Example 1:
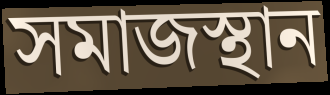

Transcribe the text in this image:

সমাজস্থান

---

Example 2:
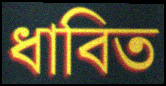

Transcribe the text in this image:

ধাবিত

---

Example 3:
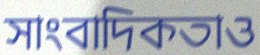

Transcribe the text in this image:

সাংবাদিকতাও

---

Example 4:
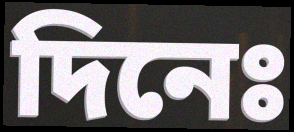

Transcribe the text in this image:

দিনেঃ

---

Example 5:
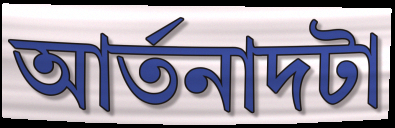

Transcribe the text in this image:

আর্তনাদটা